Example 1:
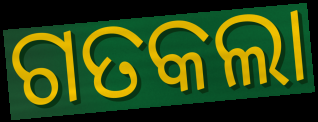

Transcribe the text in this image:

ଗତକଲା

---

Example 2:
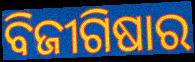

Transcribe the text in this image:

ବିଜୀଗିଷାର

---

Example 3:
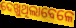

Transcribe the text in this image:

ଦେଖୁଥିଲାବେଳେ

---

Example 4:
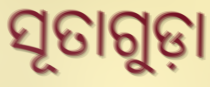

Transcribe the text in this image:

ସୂତାଗୁଡ଼ା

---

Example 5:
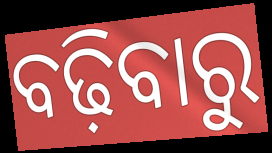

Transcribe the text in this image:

ବଢ଼ିବାରୁ